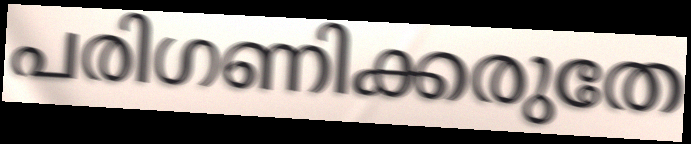
പരിഗണിക്കരുതേ